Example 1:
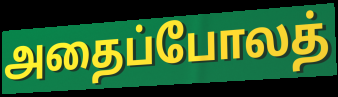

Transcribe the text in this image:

அதைப்போலத்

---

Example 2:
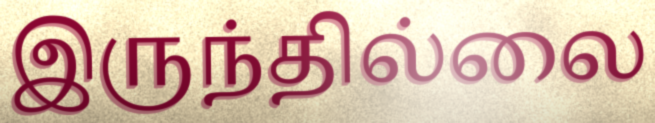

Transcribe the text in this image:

இருந்தில்லை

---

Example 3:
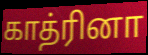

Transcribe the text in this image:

காத்ரினா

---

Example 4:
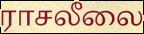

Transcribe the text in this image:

ராசலீலை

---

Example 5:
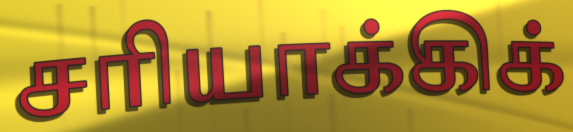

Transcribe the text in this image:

சரியாக்கிக்